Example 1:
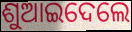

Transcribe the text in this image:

ଶୁଆଇଦେଲେ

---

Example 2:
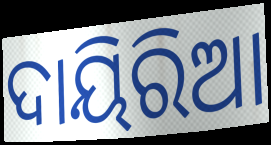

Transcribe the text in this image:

ଦାୟିରିଆ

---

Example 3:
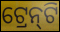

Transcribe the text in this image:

ଟ୍ରେନ୍‌ଟି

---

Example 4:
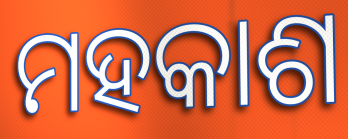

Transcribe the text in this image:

ମହକାଶ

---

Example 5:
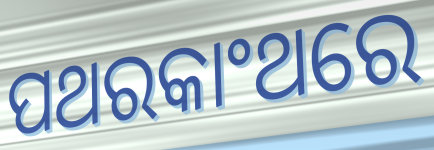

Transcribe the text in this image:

ପଥରକାଂଥରେ